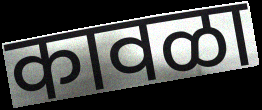
कावळा